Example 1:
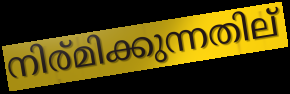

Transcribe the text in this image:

നിര്മിക്കുന്നതില്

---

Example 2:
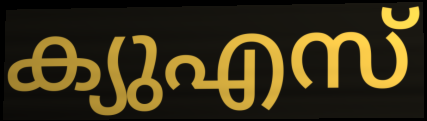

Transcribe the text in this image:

ക്യുഎസ്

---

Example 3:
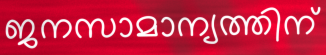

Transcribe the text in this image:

ജനസാമാന്യത്തിന്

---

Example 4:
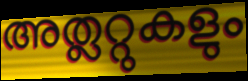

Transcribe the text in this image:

അത്ലറ്റുകളും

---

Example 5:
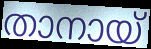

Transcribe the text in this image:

താനായ്